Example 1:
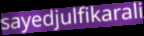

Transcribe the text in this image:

sayedjulfikarali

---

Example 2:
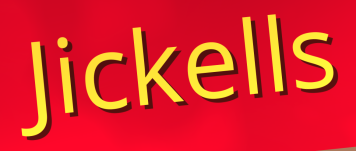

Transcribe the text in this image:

Jickells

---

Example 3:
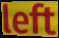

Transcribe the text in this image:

left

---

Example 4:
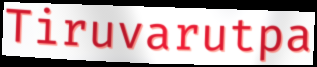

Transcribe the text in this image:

Tiruvarutpa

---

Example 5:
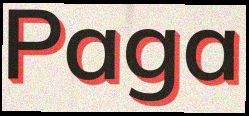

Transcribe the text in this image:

Paga